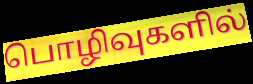
பொழிவுகளில்